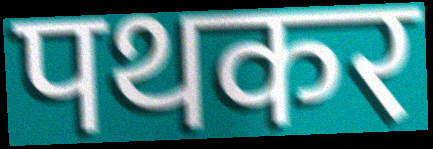
पथकर